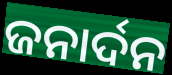
ଜନାର୍ଦନ